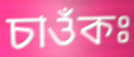
চাওঁকঃ